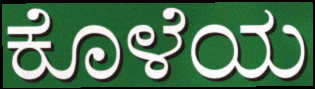
ಕೊಳೆಯ